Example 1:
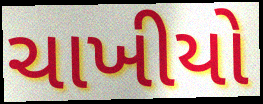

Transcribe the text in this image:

ચાખીયો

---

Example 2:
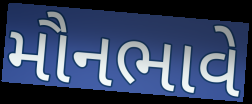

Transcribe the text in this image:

મૌનભાવે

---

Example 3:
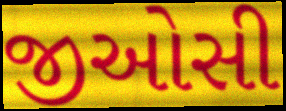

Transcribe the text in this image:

જીઓસી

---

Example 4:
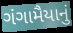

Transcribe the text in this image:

ગંગામૈયાનું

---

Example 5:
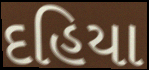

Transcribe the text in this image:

દહિયા